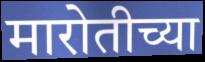
मारोतीच्या